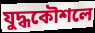
যুদ্ধকৌশলে